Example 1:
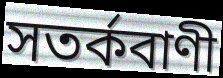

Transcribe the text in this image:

সতৰ্কবাণী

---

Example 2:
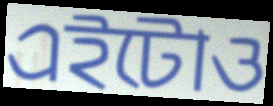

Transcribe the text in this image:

এইটোও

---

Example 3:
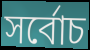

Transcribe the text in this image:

সৰ্বোচ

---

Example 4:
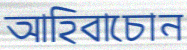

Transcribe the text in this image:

আহিবাচোন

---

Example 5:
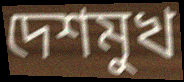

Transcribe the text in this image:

দেশমুখ